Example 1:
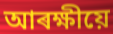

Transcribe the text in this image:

আৰক্ষীয়ে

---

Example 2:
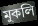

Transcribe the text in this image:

মুকলি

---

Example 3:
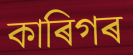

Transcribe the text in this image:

কাৰিগৰ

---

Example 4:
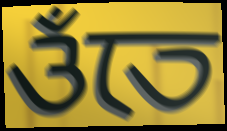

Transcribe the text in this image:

ওঁতে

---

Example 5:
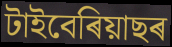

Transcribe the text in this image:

টাইবেৰিয়াছৰ